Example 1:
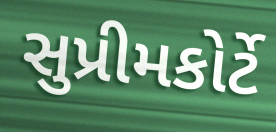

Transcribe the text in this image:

સુપ્રીમકોર્ટે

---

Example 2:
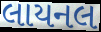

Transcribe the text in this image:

લાયનલ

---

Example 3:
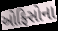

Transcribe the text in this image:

ઓફિસોના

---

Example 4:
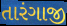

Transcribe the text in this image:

તારંગાજી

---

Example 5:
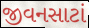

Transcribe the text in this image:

જીવનસાટાં